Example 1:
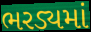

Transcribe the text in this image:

ભરડ્યમાં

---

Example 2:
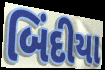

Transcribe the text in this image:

બિંદીયા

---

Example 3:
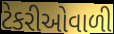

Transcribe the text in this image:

ટેકરીઓવાળી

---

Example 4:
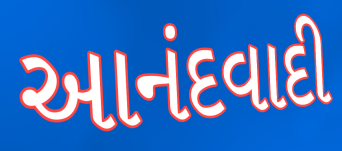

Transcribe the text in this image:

આનંદવાદી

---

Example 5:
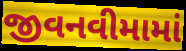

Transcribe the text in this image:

જીવનવીમામાં